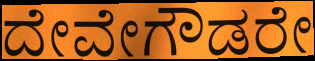
ದೇವೇಗೌಡರೇ